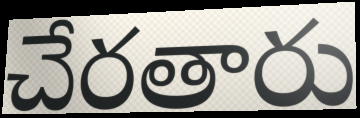
చేరతారు